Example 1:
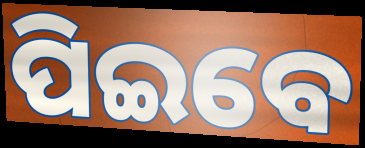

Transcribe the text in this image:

ପିଇବେ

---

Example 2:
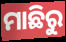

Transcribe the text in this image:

ମାଛିରୁ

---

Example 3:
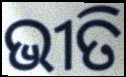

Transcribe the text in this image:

ଭୀତି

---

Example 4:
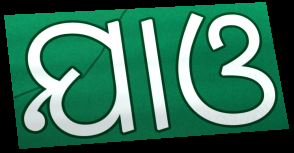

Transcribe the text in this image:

ଯାଓ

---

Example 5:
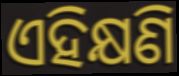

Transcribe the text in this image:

ଏହିକ୍ଷଣି